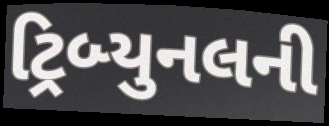
ટ્રિબ્યુનલની